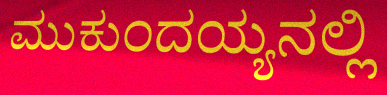
ಮುಕುಂದಯ್ಯನಲ್ಲಿ